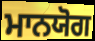
ਮਾਨਯੋਗ